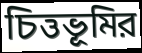
চিত্তভূমির